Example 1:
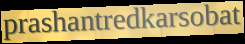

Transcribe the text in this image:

prashantredkarsobat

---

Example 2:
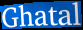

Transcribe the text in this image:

Ghatal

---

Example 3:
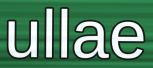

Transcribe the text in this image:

ullae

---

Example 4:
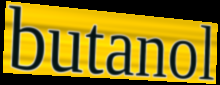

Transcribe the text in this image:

butanol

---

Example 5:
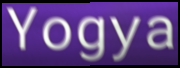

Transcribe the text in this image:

Yogya